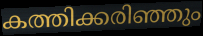
കത്തിക്കരിഞ്ഞും